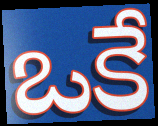
ఒకే